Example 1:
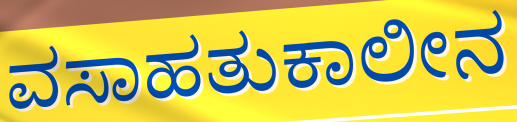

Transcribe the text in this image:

ವಸಾಹತುಕಾಲೀನ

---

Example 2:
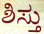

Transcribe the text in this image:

ಶಿಸ್ತು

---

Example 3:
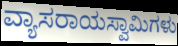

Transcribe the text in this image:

ವ್ಯಾಸರಾಯಸ್ವಾಮಿಗಳು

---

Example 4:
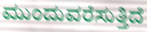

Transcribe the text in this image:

ಮುಂದುವರೆಸುತ್ತಿದೆ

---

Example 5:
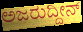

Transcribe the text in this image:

ಅಜರುದ್ದೀನ್